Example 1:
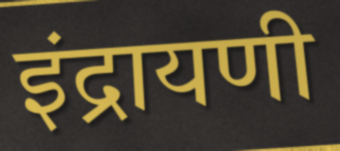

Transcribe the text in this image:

इंद्रायणी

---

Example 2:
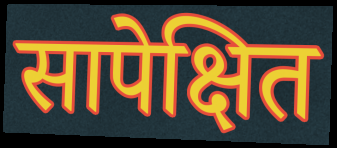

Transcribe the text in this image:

सापेक्षित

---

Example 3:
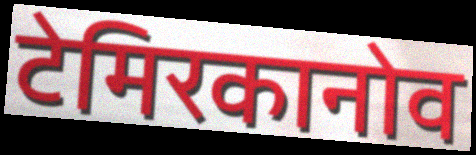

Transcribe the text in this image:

टेमिरकानोव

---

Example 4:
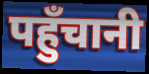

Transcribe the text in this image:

पहुँचानी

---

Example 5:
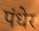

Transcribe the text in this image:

पंधेर